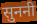
सुननी